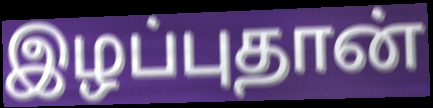
இழப்புதான்